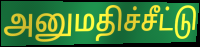
அனுமதிச்சீட்டு